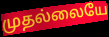
முதல்லையே